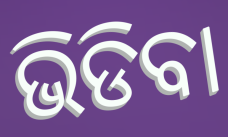
ଭିଡିବା